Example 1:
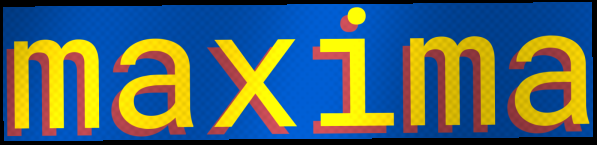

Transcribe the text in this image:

maxima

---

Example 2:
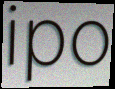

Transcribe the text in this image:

ipo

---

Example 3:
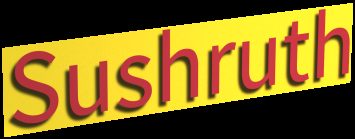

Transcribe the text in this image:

Sushruth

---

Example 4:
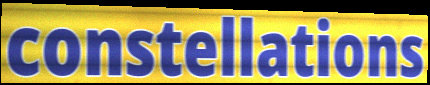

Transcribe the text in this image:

constellations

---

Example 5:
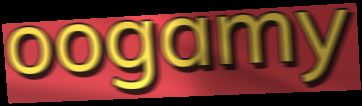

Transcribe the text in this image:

oogamy